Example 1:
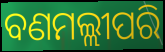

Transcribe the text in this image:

ବଣମଲ୍ଲୀପରି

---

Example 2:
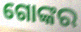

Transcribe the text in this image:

ଗୋଙ୍କର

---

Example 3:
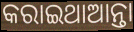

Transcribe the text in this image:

କରାଇଥାଆନ୍ତା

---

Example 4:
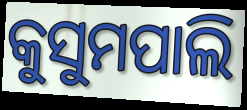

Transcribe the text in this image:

କୁସୁମପାଲି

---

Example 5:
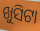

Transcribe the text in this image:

ଖୁସିଟା